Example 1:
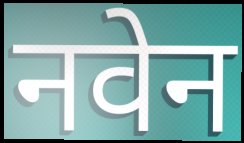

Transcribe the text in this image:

नवेन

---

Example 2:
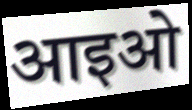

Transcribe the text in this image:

आइओ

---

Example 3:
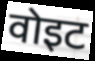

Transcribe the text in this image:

वोइट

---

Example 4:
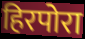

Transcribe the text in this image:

हिरपोरा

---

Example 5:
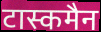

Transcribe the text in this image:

टास्कमैन